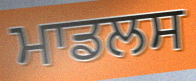
ਮਾਡਲਸ